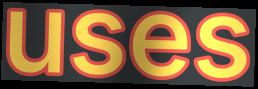
uses